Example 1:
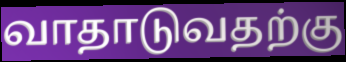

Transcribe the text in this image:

வாதாடுவதற்கு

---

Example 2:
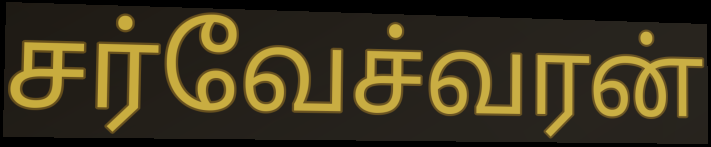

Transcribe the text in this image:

சர்வேச்வரன்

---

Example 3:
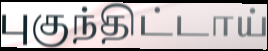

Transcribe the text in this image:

புகுந்திட்டாய்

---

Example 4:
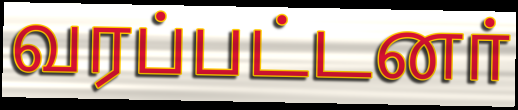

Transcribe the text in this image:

வரப்பட்டனர்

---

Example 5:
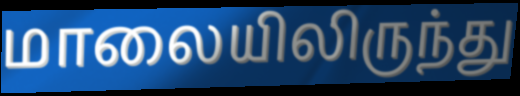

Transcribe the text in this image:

மாலையிலிருந்து